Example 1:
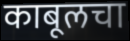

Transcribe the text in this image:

काबूलचा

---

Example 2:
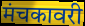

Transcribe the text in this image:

मंचकावरी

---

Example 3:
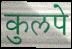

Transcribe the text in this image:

कुलपे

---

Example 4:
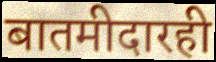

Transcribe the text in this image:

बातमीदारही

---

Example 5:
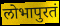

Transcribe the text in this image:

लोभापुरतं